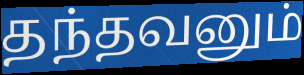
தந்தவனும்